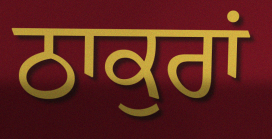
ਠਾਕੁਰਾਂ